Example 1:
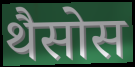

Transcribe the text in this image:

थैसोस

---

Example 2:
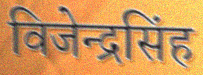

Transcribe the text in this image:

विजेन्द्रसिंह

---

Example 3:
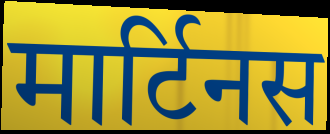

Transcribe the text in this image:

मार्टिनस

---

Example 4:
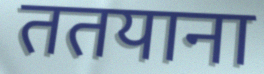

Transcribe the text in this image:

ततयाना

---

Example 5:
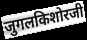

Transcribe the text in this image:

जुगलकिशोरजी